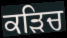
ਕੜਿਚ